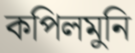
কপিলমুনি